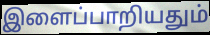
இளைப்பாறியதும்